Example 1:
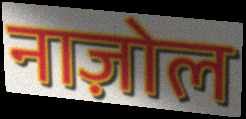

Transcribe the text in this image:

नाज़ोल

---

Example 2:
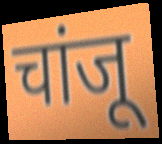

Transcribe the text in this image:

चांजू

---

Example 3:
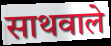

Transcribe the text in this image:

साथवाले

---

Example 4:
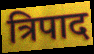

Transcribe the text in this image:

त्रिपाद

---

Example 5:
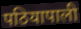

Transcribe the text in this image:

पठियापाली